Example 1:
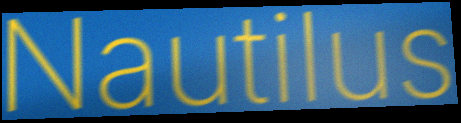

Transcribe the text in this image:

Nautilus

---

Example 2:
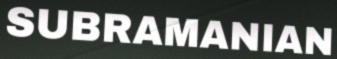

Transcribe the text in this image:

SUBRAMANIAN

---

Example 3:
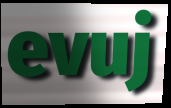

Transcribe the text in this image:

evuj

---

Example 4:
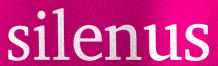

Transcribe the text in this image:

silenus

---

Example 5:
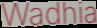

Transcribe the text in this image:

Wadhia